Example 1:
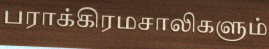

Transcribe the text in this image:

பராக்கிரமசாலிகளும்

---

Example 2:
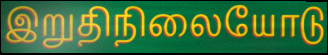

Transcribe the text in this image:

இறுதிநிலையோடு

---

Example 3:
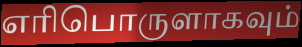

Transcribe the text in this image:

எரிபொருளாகவும்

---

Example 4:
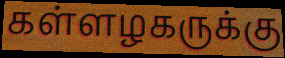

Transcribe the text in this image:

கள்ளழகருக்கு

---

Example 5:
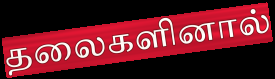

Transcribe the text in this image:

தலைகளினால்